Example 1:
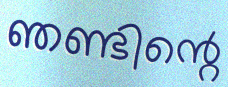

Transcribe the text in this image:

ഞണ്ടിന്റെ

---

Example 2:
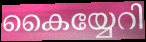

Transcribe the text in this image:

കൈയ്യേറി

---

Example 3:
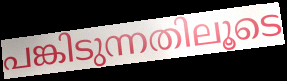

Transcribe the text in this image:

പങ്കിടുന്നതിലൂടെ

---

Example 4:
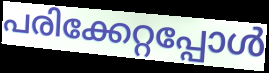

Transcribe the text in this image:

പരിക്കേറ്റപ്പോൾ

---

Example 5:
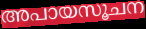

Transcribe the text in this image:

അപായസൂചന